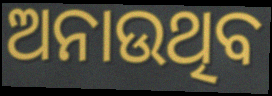
ଅନାଉଥିବ